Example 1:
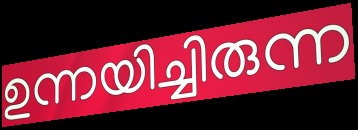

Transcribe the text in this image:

ഉന്നയിച്ചിരുന്ന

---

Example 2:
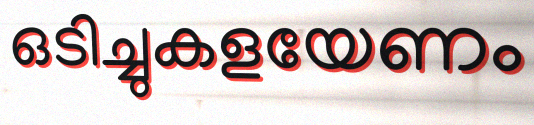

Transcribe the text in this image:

ഒടിച്ചുകളയേണം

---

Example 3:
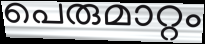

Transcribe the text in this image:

പെരുമാറ്റം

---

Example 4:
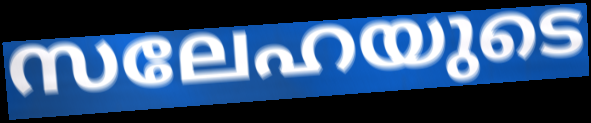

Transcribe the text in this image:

സലേഹയുടെ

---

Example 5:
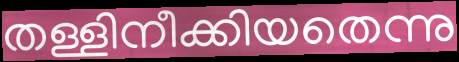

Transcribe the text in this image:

തള്ളിനീക്കിയതെന്നു